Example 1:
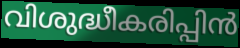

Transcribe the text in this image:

വിശുദ്ധീകരിപ്പിൻ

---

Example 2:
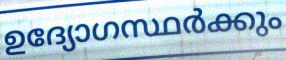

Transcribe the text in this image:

ഉദ്യോഗസ്ഥർക്കും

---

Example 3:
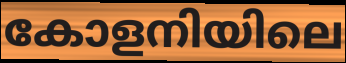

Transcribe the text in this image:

കോളനിയിലെ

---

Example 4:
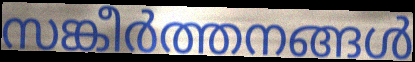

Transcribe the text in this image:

സങ്കീർത്തനങ്ങൾ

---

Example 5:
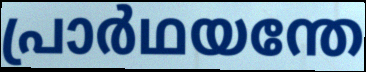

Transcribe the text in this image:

പ്രാർഥയന്തേ